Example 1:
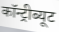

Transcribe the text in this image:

कॉन्ट्रीब्यूट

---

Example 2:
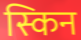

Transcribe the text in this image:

स्‍किन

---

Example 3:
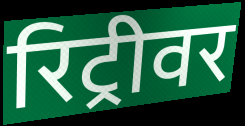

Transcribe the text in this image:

रिट्रीवर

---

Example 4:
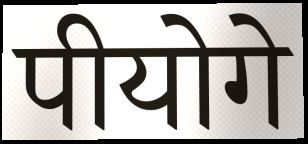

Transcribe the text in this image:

पीयोगे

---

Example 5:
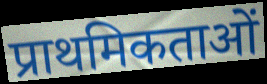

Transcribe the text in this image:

प्राथमिकताओं